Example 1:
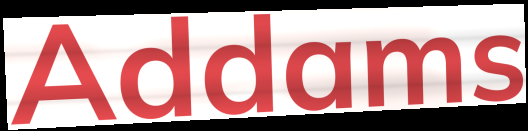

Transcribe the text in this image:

Addams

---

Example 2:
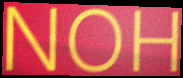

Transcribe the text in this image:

NOH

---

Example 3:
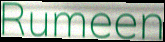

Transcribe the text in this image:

Rumeen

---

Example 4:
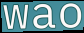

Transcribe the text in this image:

wao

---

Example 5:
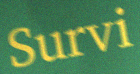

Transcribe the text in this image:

Survi